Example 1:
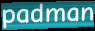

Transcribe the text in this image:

padman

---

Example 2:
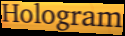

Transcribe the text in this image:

Hologram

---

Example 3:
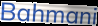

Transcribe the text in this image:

Bahmani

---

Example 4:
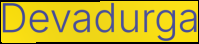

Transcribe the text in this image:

Devadurga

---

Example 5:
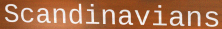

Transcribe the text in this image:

Scandinavians